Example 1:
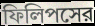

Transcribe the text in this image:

ফিলিপসের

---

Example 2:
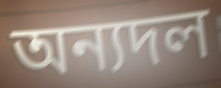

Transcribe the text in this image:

অন্যদল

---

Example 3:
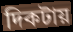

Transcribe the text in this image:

দিকটায়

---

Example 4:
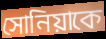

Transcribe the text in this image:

সোনিয়াকে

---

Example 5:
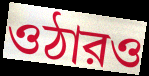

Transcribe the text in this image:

ওঠারও